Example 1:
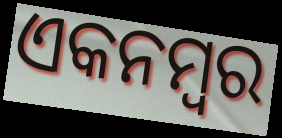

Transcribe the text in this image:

ଏକନମ୍ବର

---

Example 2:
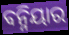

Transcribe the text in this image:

ବନ୍ନିୟାର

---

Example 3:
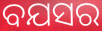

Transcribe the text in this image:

ବଯସର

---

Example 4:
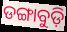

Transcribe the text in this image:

ଡଙ୍ଗାବୁଡ଼ି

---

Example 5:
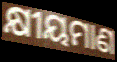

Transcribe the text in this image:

କ୍ଷୀୟମାଣ